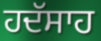
ਹਦੱਸਾਹ